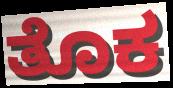
ತೊಕ